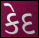
કેદ